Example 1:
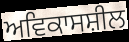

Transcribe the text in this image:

ਅਵਿਕਾਸਸ਼ੀਲ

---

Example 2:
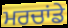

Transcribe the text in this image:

ਮਰਚਾਂਡੇ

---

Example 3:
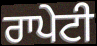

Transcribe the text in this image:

ਰਾਪੇਟੀ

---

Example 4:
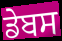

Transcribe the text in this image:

ਡੇਬਸ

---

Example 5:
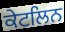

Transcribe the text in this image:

ਕੇਟਲਿਨ